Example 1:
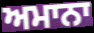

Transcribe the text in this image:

ਅਮਾਨਾ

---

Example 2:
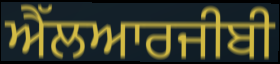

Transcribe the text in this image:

ਐੱਲਆਰਜੀਬੀ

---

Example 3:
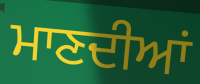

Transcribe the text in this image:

ਮਾਣਦੀਆਂ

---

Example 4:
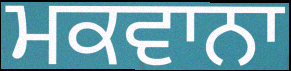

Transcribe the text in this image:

ਮਕਵਾਨਾ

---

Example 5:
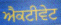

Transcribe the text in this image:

ਐਕਟੀਵੇਟ